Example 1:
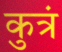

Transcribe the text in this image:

कुत्रं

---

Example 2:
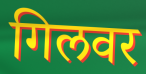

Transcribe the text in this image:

गिलवर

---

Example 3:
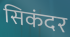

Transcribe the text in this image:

सिकंदर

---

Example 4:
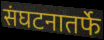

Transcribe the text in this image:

संघटनातर्फे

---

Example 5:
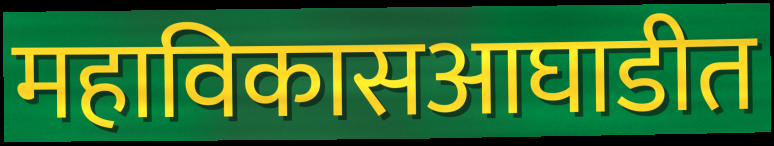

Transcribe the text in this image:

महाविकासआघाडीत